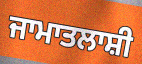
ਜਾਮਾਤਲਾਸ਼ੀ